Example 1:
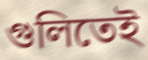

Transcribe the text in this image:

গুলিতেই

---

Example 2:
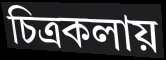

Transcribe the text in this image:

চিত্রকলায়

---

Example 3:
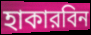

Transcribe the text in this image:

হাকারবিন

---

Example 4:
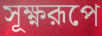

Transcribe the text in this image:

সূক্ষ্ণরূপে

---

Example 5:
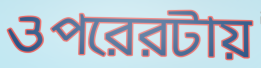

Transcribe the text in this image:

ওপরেরটায়